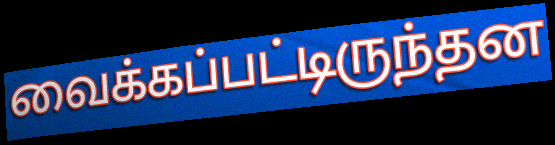
வைக்கப்பட்டிருந்தன